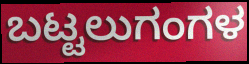
ಬಟ್ಟಲುಗಂಗಳ